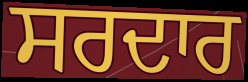
ਸਰਦਾਰ